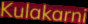
Kulakarni